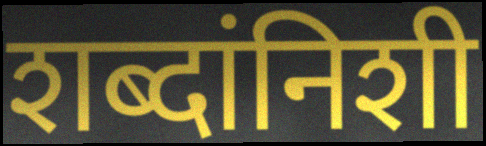
शब्दांनिशी